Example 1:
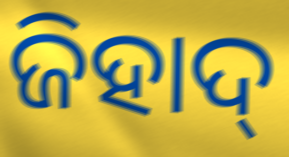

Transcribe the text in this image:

ଜିହାଦ୍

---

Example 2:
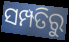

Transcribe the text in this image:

ସମ୍ପତିରୁ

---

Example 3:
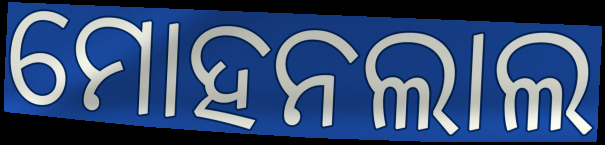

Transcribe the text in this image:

ମୋହନଲାଲ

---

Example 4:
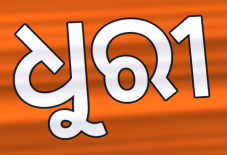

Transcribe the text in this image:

ଧୁରୀ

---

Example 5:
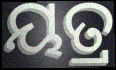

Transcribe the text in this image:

ୟତ୍ର